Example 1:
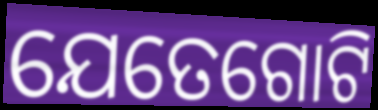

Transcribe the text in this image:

ଯେତେଗୋଟି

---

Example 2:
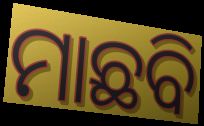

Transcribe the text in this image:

ମାଛବି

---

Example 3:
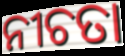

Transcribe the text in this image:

ନୀଚତା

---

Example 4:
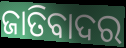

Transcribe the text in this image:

ଜାତିବାଦର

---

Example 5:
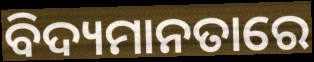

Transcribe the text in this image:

ବିଦ୍ୟମାନତାରେ